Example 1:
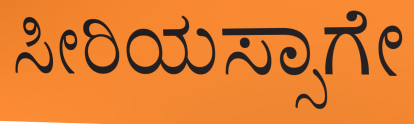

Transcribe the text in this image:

ಸೀರಿಯಸ್ಸಾಗೇ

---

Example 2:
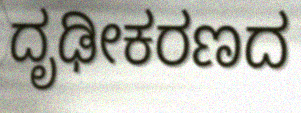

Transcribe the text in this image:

ದೃಢೀಕರಣದ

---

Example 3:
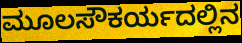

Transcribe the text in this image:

ಮೂಲಸೌಕರ್ಯದಲ್ಲಿನ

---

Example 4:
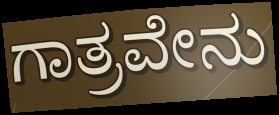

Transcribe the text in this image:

ಗಾತ್ರವೇನು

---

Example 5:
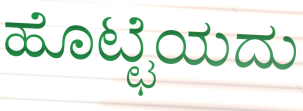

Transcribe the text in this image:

ಹೊಟ್ಟೆಯದು